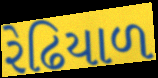
રેઢિયાળ